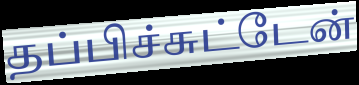
தப்பிச்சுட்டேன்